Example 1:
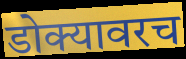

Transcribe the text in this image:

डोक्यावरच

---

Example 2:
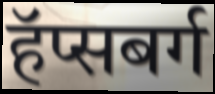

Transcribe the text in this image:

हॅप्सबर्ग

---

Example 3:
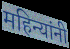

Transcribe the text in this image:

महिन्यांनी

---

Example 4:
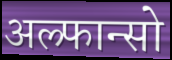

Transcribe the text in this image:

अल्फान्सो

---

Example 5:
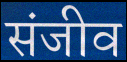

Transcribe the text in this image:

संजीव